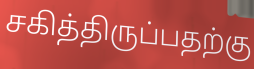
சகித்திருப்பதற்கு